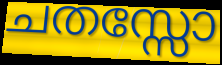
ചതസ്സോ